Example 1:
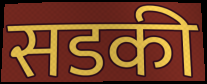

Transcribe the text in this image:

सडकी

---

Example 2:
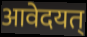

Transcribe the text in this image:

आवेदयत्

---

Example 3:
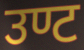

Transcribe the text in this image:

उण्ट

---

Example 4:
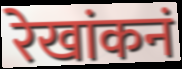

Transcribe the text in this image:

रेखांकनं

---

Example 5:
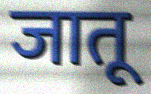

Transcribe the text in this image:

जातू